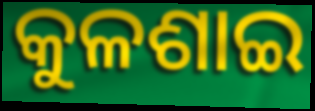
କୁଳଶାଇ